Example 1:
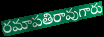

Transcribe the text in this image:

రమాపతిరావుగారు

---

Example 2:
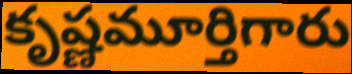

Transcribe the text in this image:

కృష్ణమూర్తిగారు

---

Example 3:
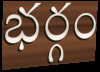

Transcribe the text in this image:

భర్గం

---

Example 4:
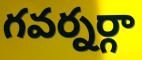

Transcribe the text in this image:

గవర్నర్గా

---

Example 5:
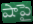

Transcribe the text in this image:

షాపై